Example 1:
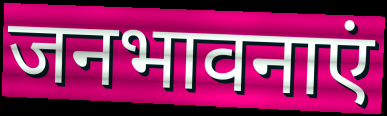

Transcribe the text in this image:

जनभावनाएं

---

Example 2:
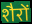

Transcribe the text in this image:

शैरों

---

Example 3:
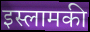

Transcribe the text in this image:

इस्लामकी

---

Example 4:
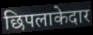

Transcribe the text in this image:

छिपलाकेदार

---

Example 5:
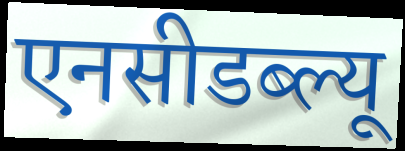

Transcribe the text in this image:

एनसीडब्ल्यू